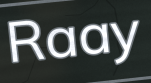
Raay